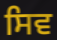
ਸਿਵ